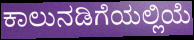
ಕಾಲುನಡಿಗೆಯಲ್ಲಿಯೆ